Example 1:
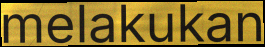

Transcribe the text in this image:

melakukan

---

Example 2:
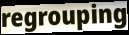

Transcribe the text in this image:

regrouping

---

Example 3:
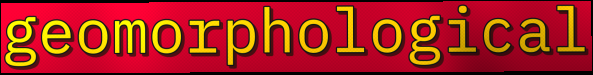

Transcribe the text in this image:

geomorphological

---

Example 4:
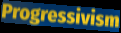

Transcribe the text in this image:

Progressivism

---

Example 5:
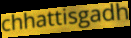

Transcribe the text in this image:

chhattisgadh